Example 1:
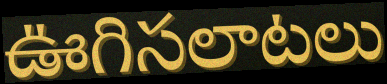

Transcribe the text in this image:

ఊగిసలాటలు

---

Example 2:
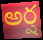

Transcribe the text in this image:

అర్ష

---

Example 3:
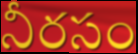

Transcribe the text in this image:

నీరసం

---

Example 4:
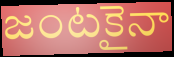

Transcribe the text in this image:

జంటకైనా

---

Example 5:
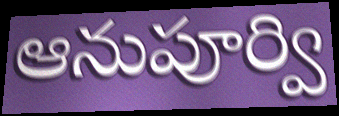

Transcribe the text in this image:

ఆనుపూర్వి